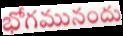
భోగమునందు